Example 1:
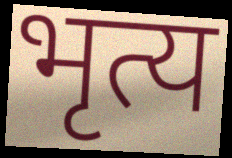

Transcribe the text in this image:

भृत्य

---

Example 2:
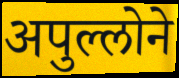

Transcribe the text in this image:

अपुल्लोने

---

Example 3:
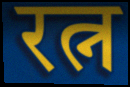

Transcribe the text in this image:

रत्न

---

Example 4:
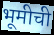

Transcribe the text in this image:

भूमीची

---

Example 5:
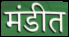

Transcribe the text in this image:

मंडीत